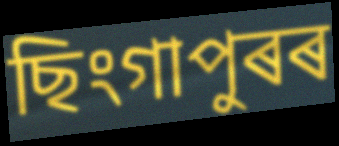
ছিংগাপুৰৰ